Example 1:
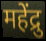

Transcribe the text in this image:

महेंद्रु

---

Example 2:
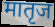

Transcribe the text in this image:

मातृज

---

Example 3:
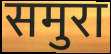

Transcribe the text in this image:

समुरा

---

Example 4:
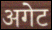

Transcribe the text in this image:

अगेट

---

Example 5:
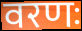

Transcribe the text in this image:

वरणः